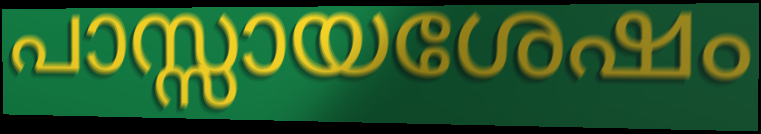
പാസ്സായശേഷം